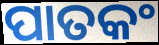
ପାତକଂ